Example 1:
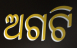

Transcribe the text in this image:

ଅଗଟି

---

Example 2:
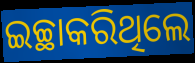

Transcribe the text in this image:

ଇଚ୍ଛାକରିଥିଲେ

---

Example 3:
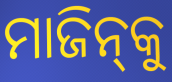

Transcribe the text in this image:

ମାଜିନ୍‌କୁ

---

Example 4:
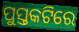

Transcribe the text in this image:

ପୁସ୍ତକଟିରେ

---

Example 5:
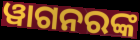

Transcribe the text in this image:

ୱାଗନରଙ୍କ